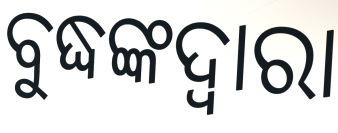
ବୁଦ୍ଧଙ୍କଦ୍ଵାରା